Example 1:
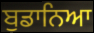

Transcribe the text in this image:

ਬੁਡਾਨਿਆ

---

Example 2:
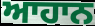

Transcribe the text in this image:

ਆਹਾਨ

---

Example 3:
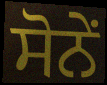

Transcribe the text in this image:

ਸੋਨੇਂ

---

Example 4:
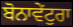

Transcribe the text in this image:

ਬੋਨਾਵੇਂਟੁਰਾ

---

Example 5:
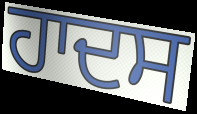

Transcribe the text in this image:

ਹਾਦਸ